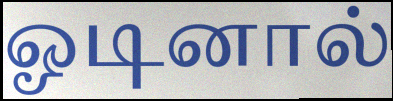
ஓடினால்